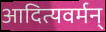
आदित्यवर्मन्